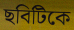
ছবিটিকে